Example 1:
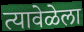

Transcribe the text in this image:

त्यावेळेला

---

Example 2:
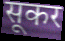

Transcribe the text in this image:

सूकर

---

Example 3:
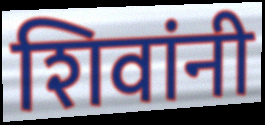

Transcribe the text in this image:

शिवांनी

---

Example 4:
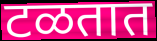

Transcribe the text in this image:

टळतात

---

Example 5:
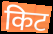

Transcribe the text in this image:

किट